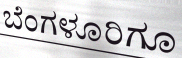
ಬೆಂಗಳೂರಿಗೂ